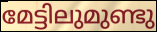
മേട്ടിലുമുണ്ടു